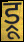
ड्रू